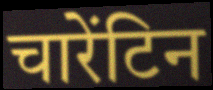
चारेंटिन